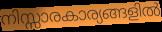
നിസ്സാരകാര്യങ്ങളിൽ